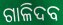
ଗାଳିଦବ